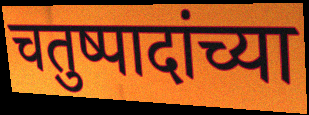
चतुष्पादांच्या